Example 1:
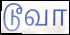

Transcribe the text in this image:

டூவா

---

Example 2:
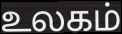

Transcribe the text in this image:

உலகம்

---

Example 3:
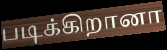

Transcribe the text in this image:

படிக்கிறானா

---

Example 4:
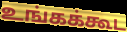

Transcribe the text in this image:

உங்கக்கூட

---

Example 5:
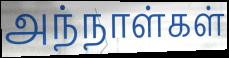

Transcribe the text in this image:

அந்நாள்கள்